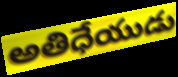
అతిధేయుడు